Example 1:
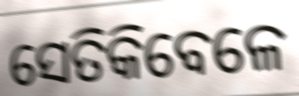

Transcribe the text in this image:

ସେତିକିବେଳେ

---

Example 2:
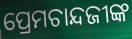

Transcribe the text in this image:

ପ୍ରେମଚାନ୍ଦଜୀଙ୍କ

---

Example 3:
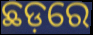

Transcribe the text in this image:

ଛଡ଼ରେ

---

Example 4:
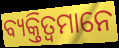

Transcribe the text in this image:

ବ୍ୟକ୍ତିତ୍ୱମାନେ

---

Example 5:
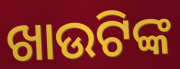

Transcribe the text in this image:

ଖାଉଟିଙ୍କ